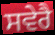
ਸਵੇਰੈ